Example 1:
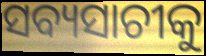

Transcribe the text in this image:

ସବ୍ୟସାଚୀକୁ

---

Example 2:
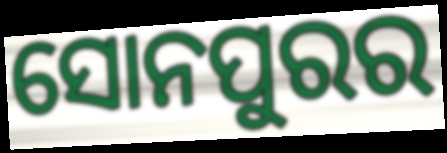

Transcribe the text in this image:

ସୋନପୁରର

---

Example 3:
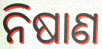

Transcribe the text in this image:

ନିଷାଣ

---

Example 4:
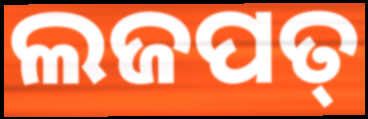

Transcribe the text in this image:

ଲଜପତ୍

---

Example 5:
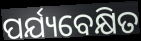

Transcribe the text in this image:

ପର୍ଯ୍ୟବେକ୍ଷିତ